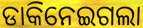
ଡାକିନେଇଗଲା